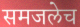
समजलेच